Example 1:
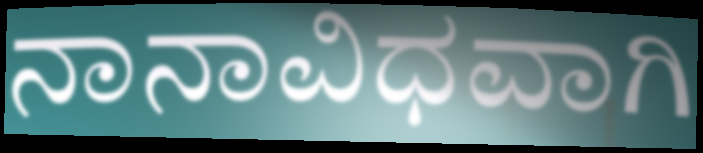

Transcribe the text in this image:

ನಾನಾವಿಧವಾಗಿ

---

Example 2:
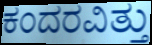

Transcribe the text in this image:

ಕಂದರವಿತ್ತು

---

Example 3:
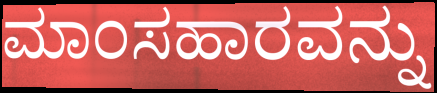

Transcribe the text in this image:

ಮಾಂಸಹಾರವನ್ನು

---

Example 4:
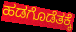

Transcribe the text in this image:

ಹಡಗೊಡೆತಕ್ಕೆ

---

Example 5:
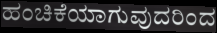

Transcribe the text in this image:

ಹಂಚಿಕೆಯಾಗುವುದರಿಂದ